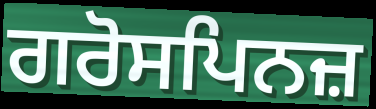
ਗਰੋਸਪਿਨਜ਼